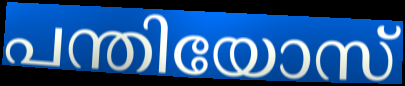
പന്തിയോസ്